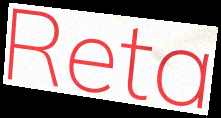
Reta